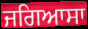
ਜਗਿਆਸਾ